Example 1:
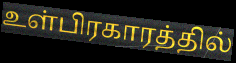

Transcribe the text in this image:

உள்பிரகாரத்தில்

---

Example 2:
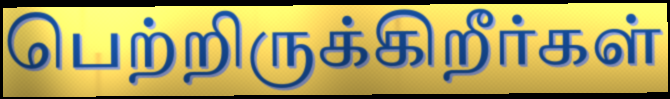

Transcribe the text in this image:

பெற்றிருக்கிறீர்கள்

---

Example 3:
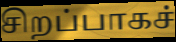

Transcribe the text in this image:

சிறப்பாகச்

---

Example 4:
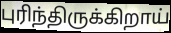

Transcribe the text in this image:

புரிந்திருக்கிறாய்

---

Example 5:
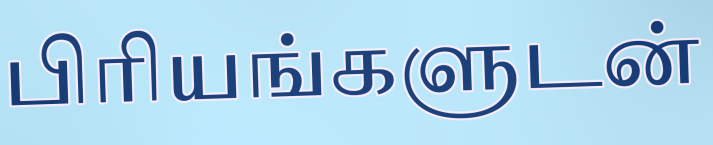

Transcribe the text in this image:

பிரியங்களுடன்